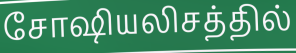
சோஷியலிசத்தில்